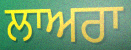
ਲਾਅਰਾ